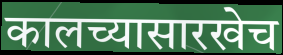
कालच्यासारखेच